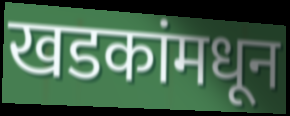
खडकांमधून